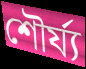
শৌৰ্য্য